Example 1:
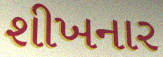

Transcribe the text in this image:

શીખનાર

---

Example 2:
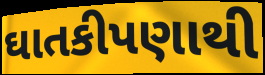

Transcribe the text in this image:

ઘાતકીપણાથી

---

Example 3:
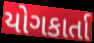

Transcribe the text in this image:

યોગકાર્તા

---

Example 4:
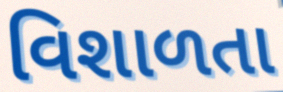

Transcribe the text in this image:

વિશાળતા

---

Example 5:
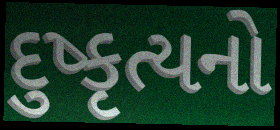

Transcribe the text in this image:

દુષ્કૃત્યનો